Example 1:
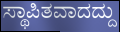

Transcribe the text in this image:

ಸ್ಥಾಪಿತವಾದದ್ದು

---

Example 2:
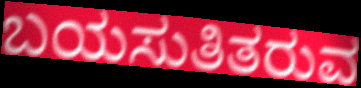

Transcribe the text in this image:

ಬಯಸುತಿತರುವ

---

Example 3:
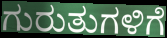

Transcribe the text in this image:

ಗುರುತುಗಳಿಗೆ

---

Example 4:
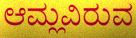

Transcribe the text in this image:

ಆಮ್ಲವಿರುವ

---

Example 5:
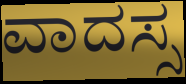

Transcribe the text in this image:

ವಾದಸ್ಸ